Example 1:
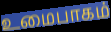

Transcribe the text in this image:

உமைபாகம்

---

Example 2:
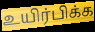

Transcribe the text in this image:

உயிர்பிக்க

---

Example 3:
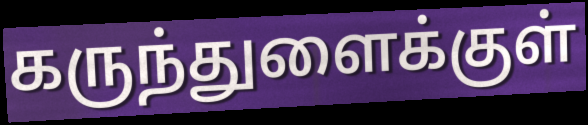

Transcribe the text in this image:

கருந்துளைக்குள்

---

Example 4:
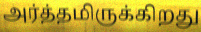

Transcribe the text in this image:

அர்த்தமிருக்கிறது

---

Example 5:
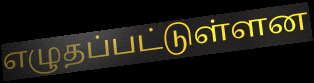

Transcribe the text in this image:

எழுதப்பட்டுள்ளன